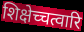
शिक्षेच्चत्वारि